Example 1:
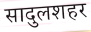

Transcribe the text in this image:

सादुलशहर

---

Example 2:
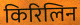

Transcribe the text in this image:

किरिलिन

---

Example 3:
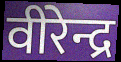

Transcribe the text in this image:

वीरेन्‍द्र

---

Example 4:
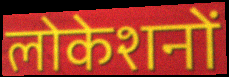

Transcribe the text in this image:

लोकेशनों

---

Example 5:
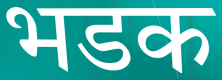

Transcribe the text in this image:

भडक